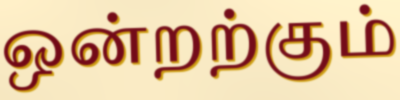
ஒன்றற்கும்